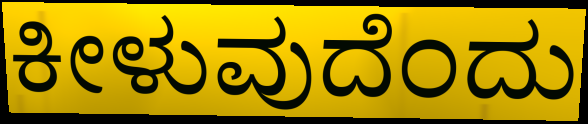
ಕೀಳುವುದೆಂದು